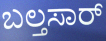
ಬಲ್ತಸಾರ್